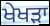
ਖੇਖੜਾ